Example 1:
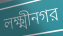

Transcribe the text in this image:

লক্ষ্মীনগর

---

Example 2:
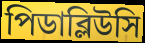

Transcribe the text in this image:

পিডাব্লিউসি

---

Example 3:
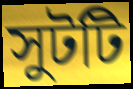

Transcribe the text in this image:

সুটটি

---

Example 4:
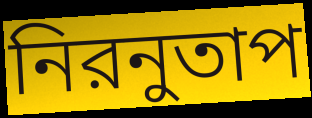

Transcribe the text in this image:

নিরনুতাপ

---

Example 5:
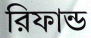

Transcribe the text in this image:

রিফান্ড